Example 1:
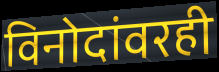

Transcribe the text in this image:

विनोदांवरही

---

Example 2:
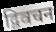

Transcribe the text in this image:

द्विवचन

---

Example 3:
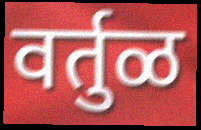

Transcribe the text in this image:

वर्तुळ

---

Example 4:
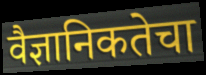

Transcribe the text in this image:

वैज्ञानिकतेचा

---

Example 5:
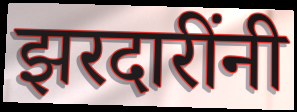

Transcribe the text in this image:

झरदारींनी